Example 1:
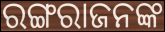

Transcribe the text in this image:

ରଙ୍ଗରାଜନଙ୍କ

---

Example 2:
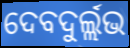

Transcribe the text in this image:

ଦେବଦୁର୍ଲ୍ଲଭ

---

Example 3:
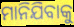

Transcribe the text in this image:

ମାନିଯିବାକୁ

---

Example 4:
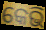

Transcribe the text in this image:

କେଭି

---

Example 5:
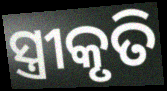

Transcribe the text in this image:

ସ୍ତ୍ରୀକୃତି